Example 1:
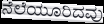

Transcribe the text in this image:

ನೆಲೆಯೂರಿದವು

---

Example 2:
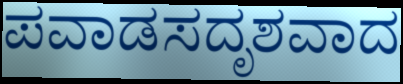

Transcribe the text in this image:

ಪವಾಡಸದೃಶವಾದ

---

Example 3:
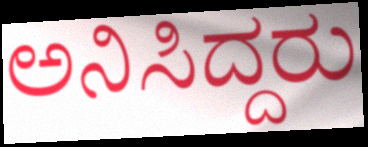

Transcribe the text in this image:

ಅನಿಸಿದ್ದರು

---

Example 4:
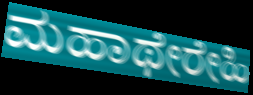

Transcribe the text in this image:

ಮಹಾಥೇರೇಹಿ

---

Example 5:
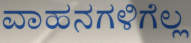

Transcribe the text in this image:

ವಾಹನಗಳಿಗೆಲ್ಲ